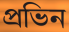
প্রভিন